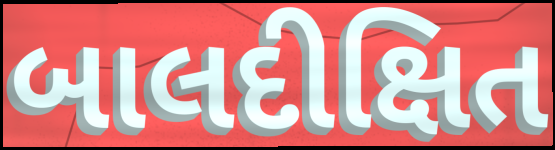
બાલદીક્ષિત